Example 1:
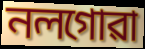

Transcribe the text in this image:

নলগোৱা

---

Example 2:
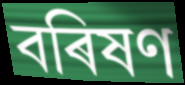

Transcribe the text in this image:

বৰিষণ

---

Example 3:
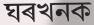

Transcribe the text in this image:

ঘৰখনক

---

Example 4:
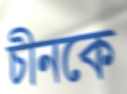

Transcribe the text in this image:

চীনকে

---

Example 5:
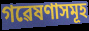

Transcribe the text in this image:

গৱেষণাসমূহ